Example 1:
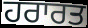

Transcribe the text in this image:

ਹਰਾਰਤ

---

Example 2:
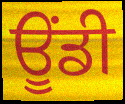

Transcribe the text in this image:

ਊਂਡੀ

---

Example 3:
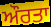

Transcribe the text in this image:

ਔਰਤਾ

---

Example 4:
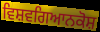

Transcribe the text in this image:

ਵਿਸ਼ਵਗਿਆਨਕੋਸ਼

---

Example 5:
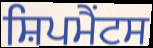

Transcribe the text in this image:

ਸ਼ਿਪਮੈਂਟਸ